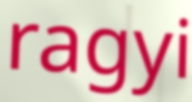
ragyi